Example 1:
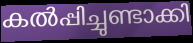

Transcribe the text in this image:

കൽപ്പിച്ചുണ്ടാക്കി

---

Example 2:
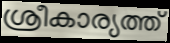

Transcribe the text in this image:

ശ്രീകാര്യത്ത്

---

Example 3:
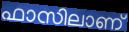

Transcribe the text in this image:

ഫാസിലാണ്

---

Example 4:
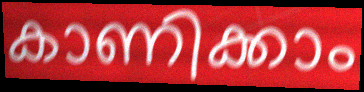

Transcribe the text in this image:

കാണിക്കാം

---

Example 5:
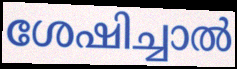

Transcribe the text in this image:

ശേഷിച്ചാൽ